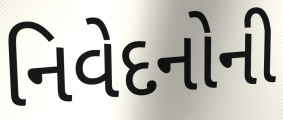
નિવેદનોની